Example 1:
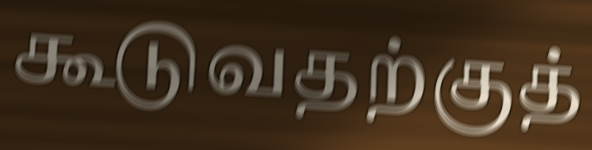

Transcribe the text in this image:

கூடுவதற்குத்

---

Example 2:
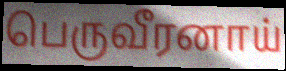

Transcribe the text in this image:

பெருவீரனாய்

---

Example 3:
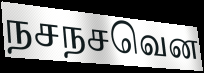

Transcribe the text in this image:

நசநசவென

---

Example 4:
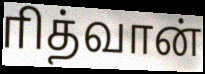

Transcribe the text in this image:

ரித்வான்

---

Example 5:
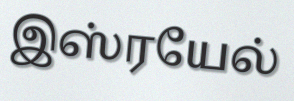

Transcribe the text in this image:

இஸ்ரயேல்